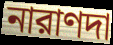
নারাণদা